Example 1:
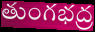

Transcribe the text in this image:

తుంగభద్ర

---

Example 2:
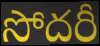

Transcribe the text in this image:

సోదరీ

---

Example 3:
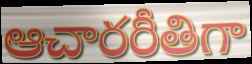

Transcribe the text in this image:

ఆచారరీతిగా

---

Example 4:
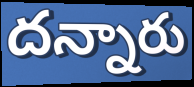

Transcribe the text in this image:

దన్నారు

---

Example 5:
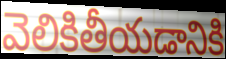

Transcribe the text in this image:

వెలికితీయడానికి